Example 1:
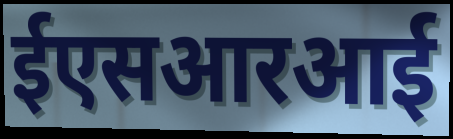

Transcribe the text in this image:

ईएसआरआई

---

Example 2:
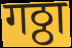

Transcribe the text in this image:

गठ्ठा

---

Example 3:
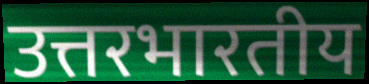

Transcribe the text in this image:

उत्तरभारतीय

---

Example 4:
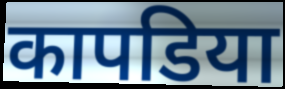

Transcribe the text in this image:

कापडिया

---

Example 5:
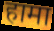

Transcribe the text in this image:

हामा